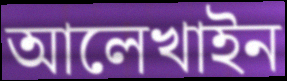
আলেখাইন